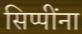
सिप्पींना